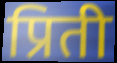
प्रिती